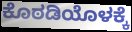
ಕೊಠಡಿಯೊಳಕ್ಕೆ